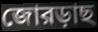
জোরড়াছ